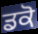
ਡਕੋ